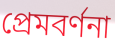
প্রেমবর্ণনা